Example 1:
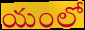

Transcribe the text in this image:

యంలో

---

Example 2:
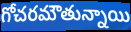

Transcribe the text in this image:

గోచరమౌతున్నాయి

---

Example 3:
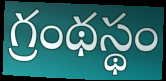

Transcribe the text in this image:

గ్రంథస్థం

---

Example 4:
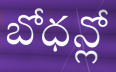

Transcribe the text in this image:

బోధన్లో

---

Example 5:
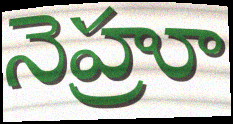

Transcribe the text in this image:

నెహ్రూ